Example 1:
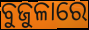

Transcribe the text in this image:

ବୁଜୁଳାରେ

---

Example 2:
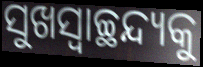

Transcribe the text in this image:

ସୁଖସ୍ଵାଚ୍ଛନ୍ଦ୍ୟକୁ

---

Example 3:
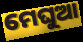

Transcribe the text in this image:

ମେଘୁଆ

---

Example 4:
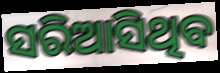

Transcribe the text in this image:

ସରିଆସିଥିବ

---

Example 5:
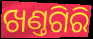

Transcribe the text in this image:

ଖଣ୍ତଗିରି